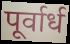
पूर्वार्ध